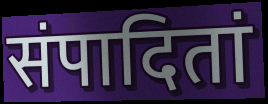
संपादितां